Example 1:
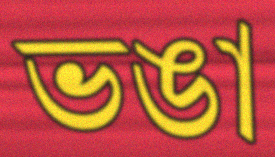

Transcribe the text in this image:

ভঙা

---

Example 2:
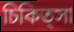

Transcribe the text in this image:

চিকিত্সা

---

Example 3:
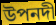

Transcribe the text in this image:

উপনদী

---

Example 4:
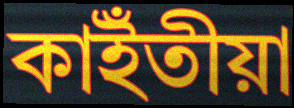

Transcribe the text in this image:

কাইঁতীয়া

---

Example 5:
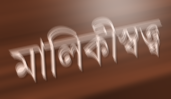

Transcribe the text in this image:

মালিকীস্বত্ত্ব